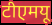
टीएमयू